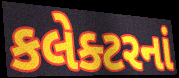
કલેક્ટરનાં